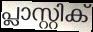
പ്ലാസ്റ്റിക്